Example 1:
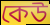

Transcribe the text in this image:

কেউ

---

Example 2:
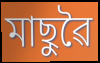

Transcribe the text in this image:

মাছুৱৈ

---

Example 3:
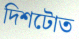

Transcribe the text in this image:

দিশটোত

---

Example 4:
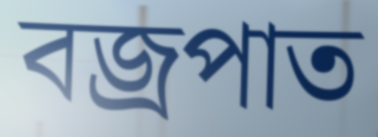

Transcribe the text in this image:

বজ্ৰপাত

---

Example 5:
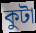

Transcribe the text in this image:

কুটা